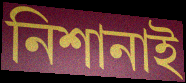
নিশানাই